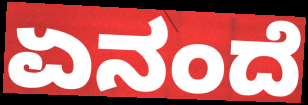
ಏನಂದೆ